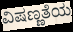
ವಿಷಣ್ಣತೆಯ